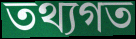
তথ্যগত